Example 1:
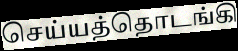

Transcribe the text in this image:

செய்யத்தொடங்கி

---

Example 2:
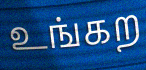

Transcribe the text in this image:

உங்கற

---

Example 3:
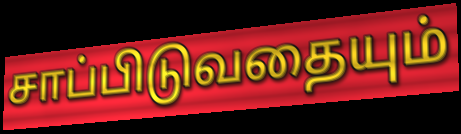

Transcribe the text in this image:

சாப்பிடுவதையும்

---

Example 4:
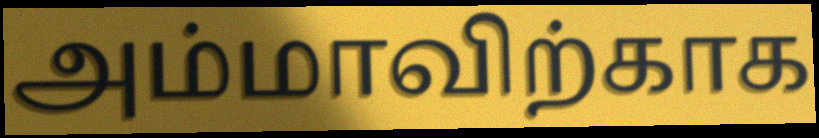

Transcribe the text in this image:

அம்மாவிற்காக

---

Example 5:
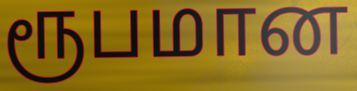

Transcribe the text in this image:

ரூபமான